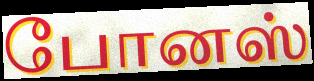
போனஸ்